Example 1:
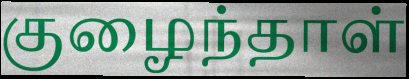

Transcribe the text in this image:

குழைந்தாள்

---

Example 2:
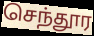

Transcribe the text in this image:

செந்தூர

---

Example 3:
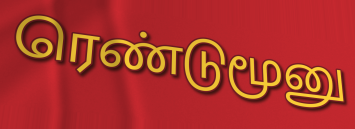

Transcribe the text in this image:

ரெண்டுமூனு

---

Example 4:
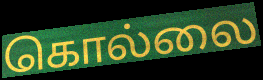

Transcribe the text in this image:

கொல்லை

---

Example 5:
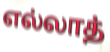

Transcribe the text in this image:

எல்லாத்